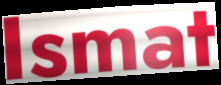
Ismat